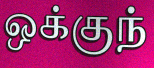
ஒக்குந்